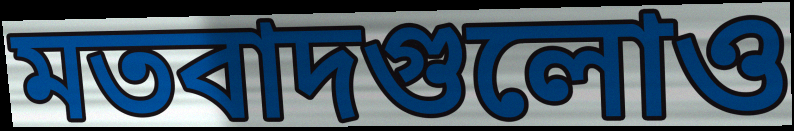
মতবাদগুলোও